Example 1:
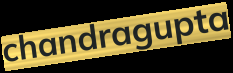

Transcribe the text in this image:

chandragupta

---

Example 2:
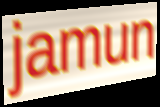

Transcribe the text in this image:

jamun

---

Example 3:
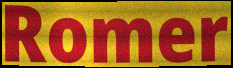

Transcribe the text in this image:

Romer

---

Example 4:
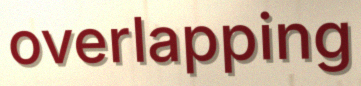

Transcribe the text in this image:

overlapping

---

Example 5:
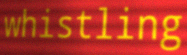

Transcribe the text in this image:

whistling